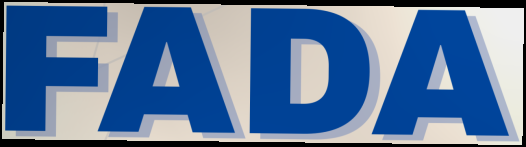
FADA